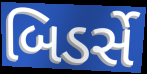
બિડર્સે